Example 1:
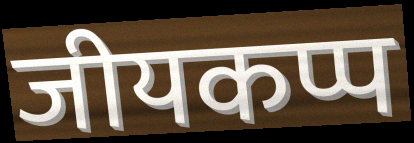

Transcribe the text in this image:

जीयकप्प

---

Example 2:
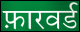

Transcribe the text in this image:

फ़ारवर्ड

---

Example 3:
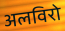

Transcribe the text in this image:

अलविरो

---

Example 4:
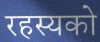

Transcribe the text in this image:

रहस्यको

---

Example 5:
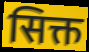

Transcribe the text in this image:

सिक्त